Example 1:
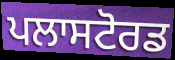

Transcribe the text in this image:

ਪਲਾਸਟੋਰਡ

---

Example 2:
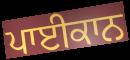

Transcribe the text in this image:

ਪਾਈਕਾਨ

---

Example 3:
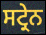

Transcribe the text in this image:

ਸਟ੍ਰੇਨ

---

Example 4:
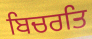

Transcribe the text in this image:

ਬਿਚਰਤਿ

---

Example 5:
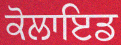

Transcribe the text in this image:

ਕੋਲਾਇਡ